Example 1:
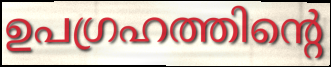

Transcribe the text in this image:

ഉപഗ്രഹത്തിന്റെ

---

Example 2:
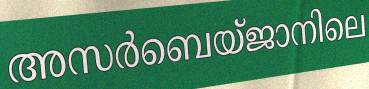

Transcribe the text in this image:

അസർബെയ്ജാനിലെ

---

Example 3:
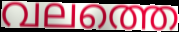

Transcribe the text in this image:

വലത്തെ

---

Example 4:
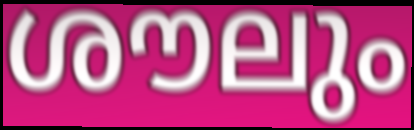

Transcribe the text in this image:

ശൗലും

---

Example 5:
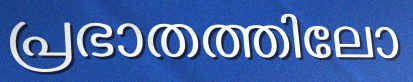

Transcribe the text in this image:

പ്രഭാതത്തിലോ